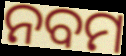
ନବମ